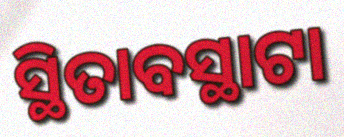
ସ୍ଥିତାବସ୍ଥାଟା